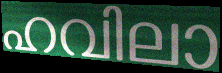
ഹവിലാ